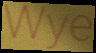
Wye